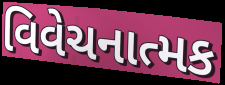
વિવેચનાત્મક